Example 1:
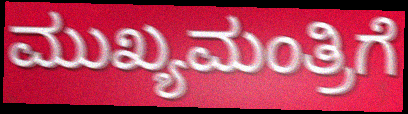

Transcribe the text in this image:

ಮುಖ್ಯಮಂತ್ರಿಗೆ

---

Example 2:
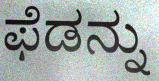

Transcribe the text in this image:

ಫೆಡನ್ನು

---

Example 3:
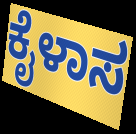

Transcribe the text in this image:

ಕೈಳಾಸ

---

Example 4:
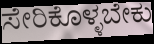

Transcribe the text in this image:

ಸೇರಿಕೊಳ್ಳಬೇಕು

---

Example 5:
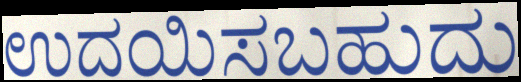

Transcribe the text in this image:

ಉದಯಿಸಬಹುದು